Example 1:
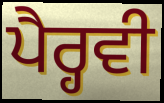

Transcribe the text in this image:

ਪੈਰ੍ਹਵੀ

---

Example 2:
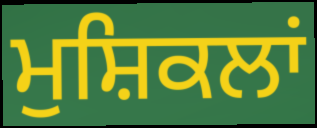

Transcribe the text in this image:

ਮੁਸ਼ਿਕਲਾਂ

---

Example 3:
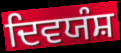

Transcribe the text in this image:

ਦਿਵਯੰਸ਼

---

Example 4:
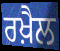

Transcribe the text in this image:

ਰਖ਼ੈਲ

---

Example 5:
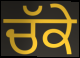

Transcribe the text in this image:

ਚੱਕੇ